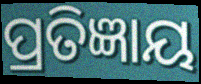
ପ୍ରତିଜ୍ଞାୟ